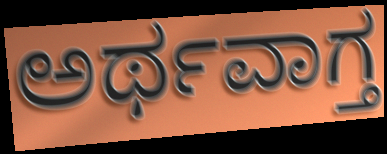
ಅರ್ಥವಾಗ್ತ